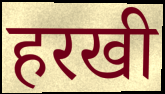
हरखी